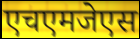
एचएमजेएस